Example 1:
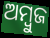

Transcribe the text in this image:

ଅମ୍ୱୁଜ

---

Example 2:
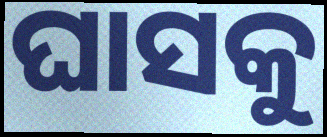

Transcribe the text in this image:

ଘାସକୁ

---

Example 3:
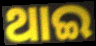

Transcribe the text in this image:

ଥାଇ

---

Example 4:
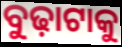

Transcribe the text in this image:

ବୁଢ଼ାଟାକୁ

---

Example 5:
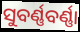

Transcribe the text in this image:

ସୁବର୍ଣ୍ଣବର୍ଣ୍ଣା